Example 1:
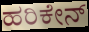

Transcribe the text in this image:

ಹರಿಕೇನ್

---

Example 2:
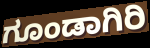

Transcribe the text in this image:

ಗೂಂಡಾಗಿರಿ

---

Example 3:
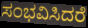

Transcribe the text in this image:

ಸಂಭವಿಸಿದರೆ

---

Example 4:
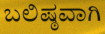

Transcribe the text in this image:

ಬಲಿಷ್ಠವಾಗಿ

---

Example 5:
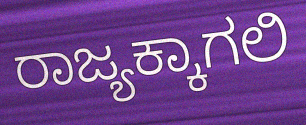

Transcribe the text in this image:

ರಾಜ್ಯಕ್ಕಾಗಲಿ